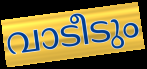
വാടീടും